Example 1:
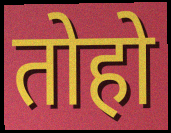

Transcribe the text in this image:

तोहो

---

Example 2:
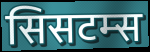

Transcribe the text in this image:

सिसटम्स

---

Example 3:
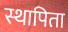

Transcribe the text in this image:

स्थापिता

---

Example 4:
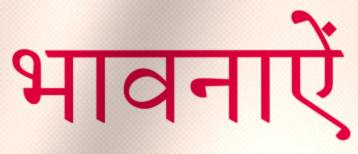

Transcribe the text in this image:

भावनाऐं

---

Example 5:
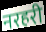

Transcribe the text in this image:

नरहरी